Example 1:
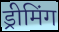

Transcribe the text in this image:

ड्रीमिंग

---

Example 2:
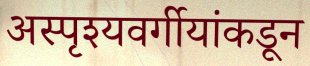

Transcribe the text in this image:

अस्पृश्यवर्गीयांकडून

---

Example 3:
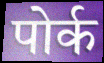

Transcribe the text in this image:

पोर्क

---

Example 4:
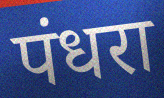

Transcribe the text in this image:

पंधरा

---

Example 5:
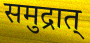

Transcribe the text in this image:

समुद्रात्